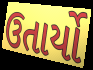
ઉતાર્યો